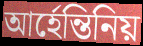
আর্হেন্তিনিয়